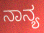
ನಾನ್ಯ